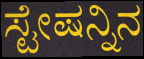
ಸ್ಟೇಷನ್ನಿನ